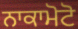
ਨਾਕਾਮੋਟੋ